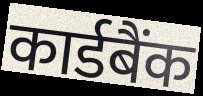
कार्डबैंक